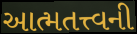
આત્મતત્ત્વની